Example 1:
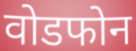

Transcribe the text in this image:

वोडफोन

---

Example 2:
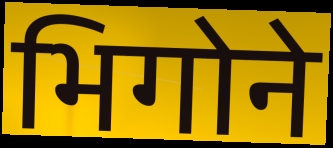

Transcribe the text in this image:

भिगोने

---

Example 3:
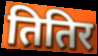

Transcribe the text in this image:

तितिर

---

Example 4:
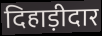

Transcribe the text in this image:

दिहाड़ीदार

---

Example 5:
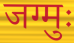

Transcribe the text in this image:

जग्मुः